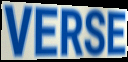
VERSE